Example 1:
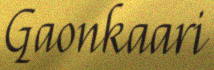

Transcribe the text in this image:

Gaonkaari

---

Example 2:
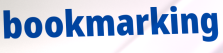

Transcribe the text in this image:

bookmarking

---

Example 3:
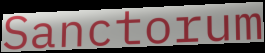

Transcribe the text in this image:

Sanctorum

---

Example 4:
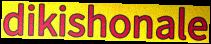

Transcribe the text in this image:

dikishonale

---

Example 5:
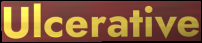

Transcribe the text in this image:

Ulcerative